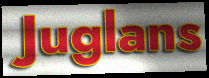
Juglans